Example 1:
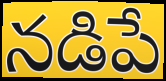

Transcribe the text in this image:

నడిపే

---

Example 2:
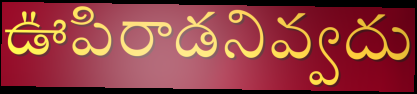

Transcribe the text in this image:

ఊపిరాడనివ్వదు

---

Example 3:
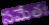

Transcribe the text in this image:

సమేతః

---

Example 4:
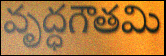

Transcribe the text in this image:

వృద్ధగౌతమి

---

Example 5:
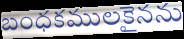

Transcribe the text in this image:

బంధకములకైనను